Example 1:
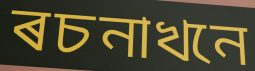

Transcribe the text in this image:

ৰচনাখনে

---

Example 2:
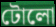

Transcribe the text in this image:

টোলো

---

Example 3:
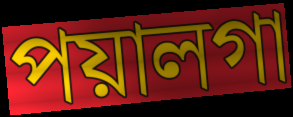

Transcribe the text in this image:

পয়ালগা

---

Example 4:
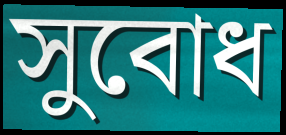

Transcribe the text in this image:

সুবোধ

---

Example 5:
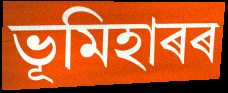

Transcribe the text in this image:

ভূমিহাৰৰ